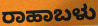
ರಾಹಾಬಳು